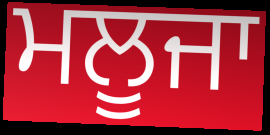
ਮਲੂਜਾ